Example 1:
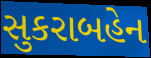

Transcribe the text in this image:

સુકરાબહેન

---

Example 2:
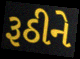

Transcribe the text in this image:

રૂઠીને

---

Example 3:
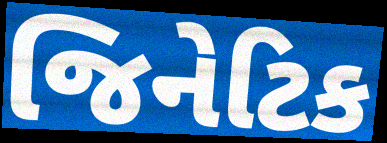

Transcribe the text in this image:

જિનેટિક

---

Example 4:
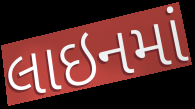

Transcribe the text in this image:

લાઇનમાં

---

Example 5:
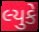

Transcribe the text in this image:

લ્યુકે